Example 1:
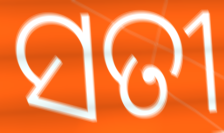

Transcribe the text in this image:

ସତୀ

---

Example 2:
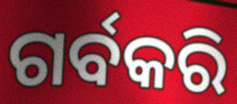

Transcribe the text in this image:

ଗର୍ବକରି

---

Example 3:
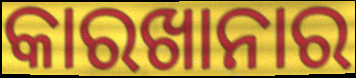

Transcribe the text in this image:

କାରଖାନାର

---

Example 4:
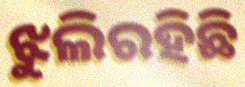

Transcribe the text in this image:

ଝୁଲିରହିଛି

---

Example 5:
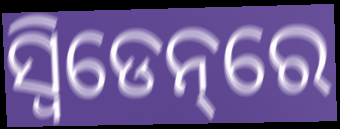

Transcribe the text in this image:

ସ୍ୱିଡେନ୍‌ରେ